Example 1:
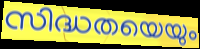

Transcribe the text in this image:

സിദ്ധതയെയും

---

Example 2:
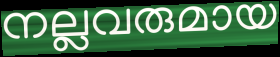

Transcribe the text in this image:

നല്ലവരുമായ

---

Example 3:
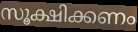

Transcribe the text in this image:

സൂക്ഷിക്കണം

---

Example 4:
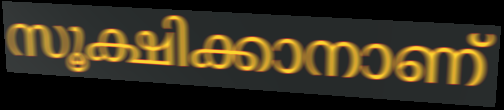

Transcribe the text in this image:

സൂക്ഷിക്കാനാണ്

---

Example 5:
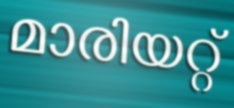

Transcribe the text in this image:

മാരിയറ്റ്